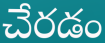
చేరడం